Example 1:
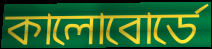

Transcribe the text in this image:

কালোবোর্ডে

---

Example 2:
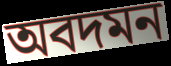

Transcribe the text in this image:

অবদমন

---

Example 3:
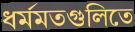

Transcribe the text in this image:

ধর্মমতগুলিতে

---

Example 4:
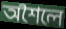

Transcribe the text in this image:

অশৈলে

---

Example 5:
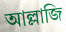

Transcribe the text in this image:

আল্লাজি